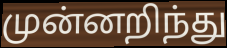
முன்னறிந்து